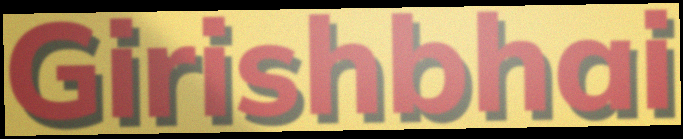
Girishbhai